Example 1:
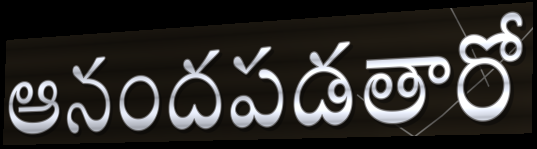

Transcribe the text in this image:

ఆనందపడతారో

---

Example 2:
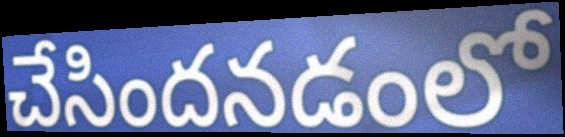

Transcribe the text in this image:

చేసిందనడంలో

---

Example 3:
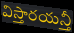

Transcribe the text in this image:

విస్తారయన్తీ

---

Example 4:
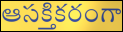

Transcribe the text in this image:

ఆసక్తికరంగా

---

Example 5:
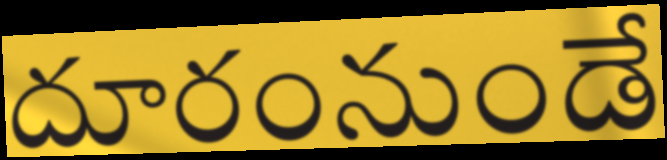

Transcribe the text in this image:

దూరంనుండే